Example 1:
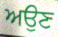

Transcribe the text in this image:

ਅਉਣ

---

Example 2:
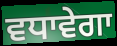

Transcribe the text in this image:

ਵਧਾਵੇਗਾ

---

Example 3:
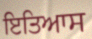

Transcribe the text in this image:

ਇਤਿਆਸ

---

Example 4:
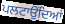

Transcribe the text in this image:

ਪਲਟਾਉਂਦਿਆਂ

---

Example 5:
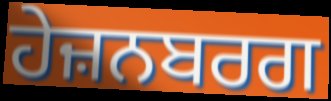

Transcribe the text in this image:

ਹੇਜ਼ਨਬਰਗ